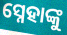
ସ୍ନେହାଙ୍କୁ